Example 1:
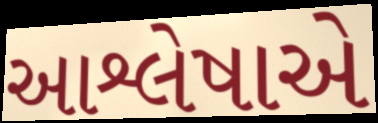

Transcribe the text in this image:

આશ્લેષાએ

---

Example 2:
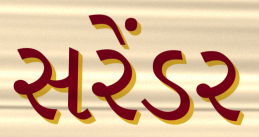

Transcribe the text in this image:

સરેંડર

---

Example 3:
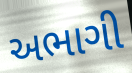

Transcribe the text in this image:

અભાગી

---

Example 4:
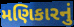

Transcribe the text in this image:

મણિકારનું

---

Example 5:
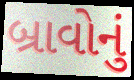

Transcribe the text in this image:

બ્રાવોનું